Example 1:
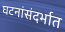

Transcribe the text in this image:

घटनांसंदर्भात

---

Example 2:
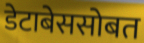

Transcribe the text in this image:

डेटाबेससोबत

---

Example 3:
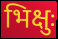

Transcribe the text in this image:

भिक्षुः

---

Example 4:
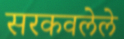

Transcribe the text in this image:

सरकवलेले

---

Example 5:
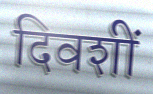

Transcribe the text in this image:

दिवशीं